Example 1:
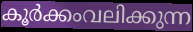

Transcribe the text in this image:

കൂർക്കംവലിക്കുന്ന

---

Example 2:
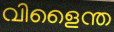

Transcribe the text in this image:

വിളൈന്ത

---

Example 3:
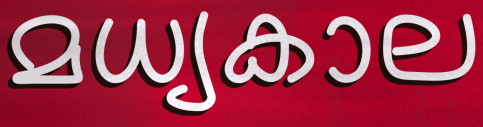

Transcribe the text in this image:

മധ്യകാല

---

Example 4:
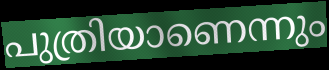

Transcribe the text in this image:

പുത്രിയാണെന്നും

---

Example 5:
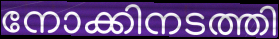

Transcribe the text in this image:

നോക്കിനടത്തി